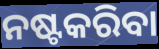
ନଷ୍ଟକରିବା